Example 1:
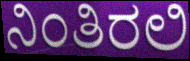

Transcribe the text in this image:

ನಿಂತಿರಲಿ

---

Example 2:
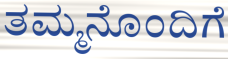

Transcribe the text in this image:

ತಮ್ಮನೊಂದಿಗೆ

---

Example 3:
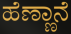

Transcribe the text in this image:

ಹೆಣ್ಣಾನೆ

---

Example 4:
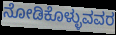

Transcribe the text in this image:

ನೋಡಿಕೊಳ್ಳುವವರ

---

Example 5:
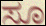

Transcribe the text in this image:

ಸೂ